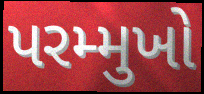
પરમ્મુખો